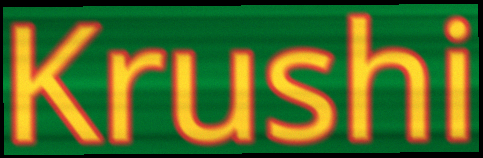
Krushi